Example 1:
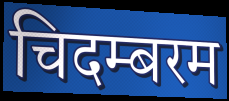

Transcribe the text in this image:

चिदम्बरम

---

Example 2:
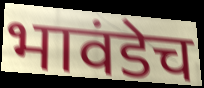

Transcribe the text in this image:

भावंडेच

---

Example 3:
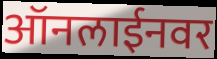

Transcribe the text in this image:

ऑनलाईनवर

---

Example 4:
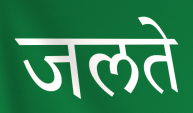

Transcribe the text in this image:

जलते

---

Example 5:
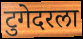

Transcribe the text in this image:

टुगेदरला